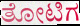
ತೋಟಿಗ